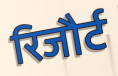
रिजौर्ट